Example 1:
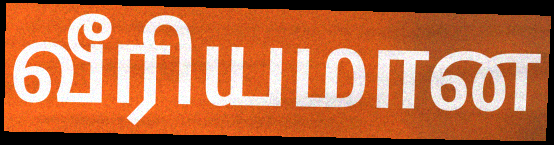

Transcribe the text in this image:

வீரியமான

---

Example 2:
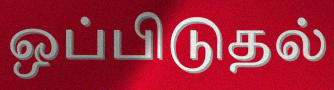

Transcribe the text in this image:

ஒப்பிடுதல்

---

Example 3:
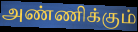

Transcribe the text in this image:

அண்ணிக்கும்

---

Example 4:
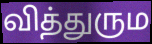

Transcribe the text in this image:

வித்துரும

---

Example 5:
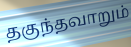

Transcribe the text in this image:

தகுந்தவாறும்